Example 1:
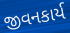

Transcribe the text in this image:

જીવનકાર્ય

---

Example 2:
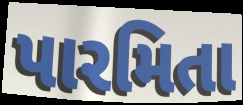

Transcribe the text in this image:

પારમિતા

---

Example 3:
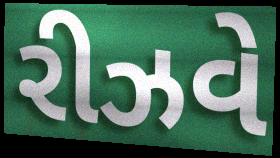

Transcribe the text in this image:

રીઝવે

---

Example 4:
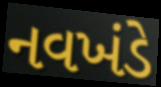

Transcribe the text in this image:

નવખંડે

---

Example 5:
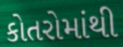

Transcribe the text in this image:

કોતરોમાંથી